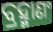
ବ୍ରହ୍ମାଣଂ